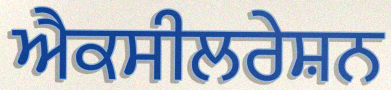
ਐਕਸੀਲਰੇਸ਼ਨ